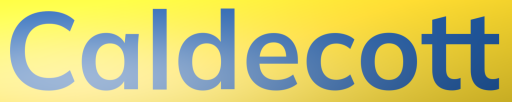
Caldecott